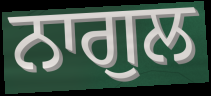
ਨਾਗੁਲ